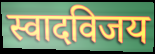
स्वादविजय